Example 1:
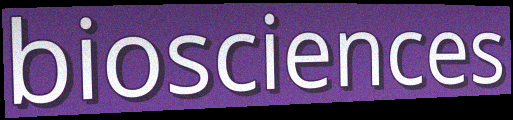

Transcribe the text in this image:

biosciences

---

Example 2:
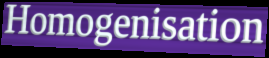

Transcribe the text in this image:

Homogenisation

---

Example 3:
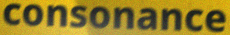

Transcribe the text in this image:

consonance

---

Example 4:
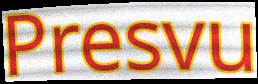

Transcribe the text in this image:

Presvu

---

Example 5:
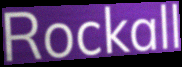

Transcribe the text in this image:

Rockall